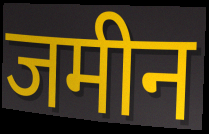
जमीन